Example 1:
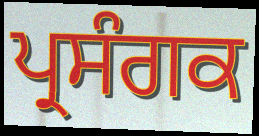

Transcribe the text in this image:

ਪ੍ਰਸੰਗਕ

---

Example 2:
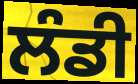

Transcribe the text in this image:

ਲੰਡੀ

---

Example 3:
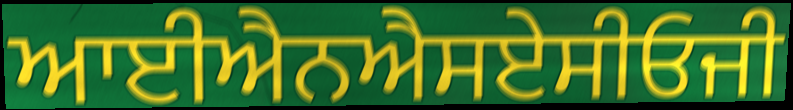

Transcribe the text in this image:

ਆਈਐਨਐਸਏਸੀਓਜੀ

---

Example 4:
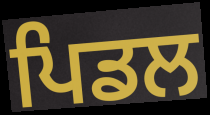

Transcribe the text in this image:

ਪਿਡਲ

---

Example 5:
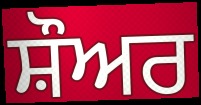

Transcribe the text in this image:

ਸ਼ੌਅਰ